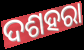
ଦଶହରା